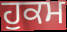
ਹੁਕਮ